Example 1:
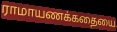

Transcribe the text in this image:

ராமாயணக்கதையை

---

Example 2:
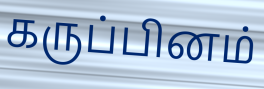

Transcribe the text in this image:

கருப்பினம்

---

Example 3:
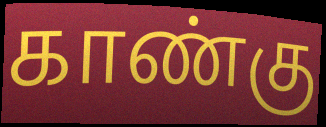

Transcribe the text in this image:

காண்கு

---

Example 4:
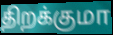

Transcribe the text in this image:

திறக்குமா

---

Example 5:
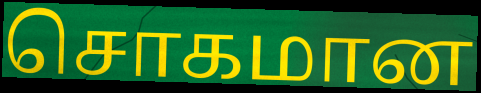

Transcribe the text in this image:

சொகமான